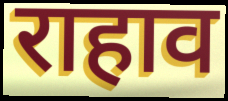
राहाव